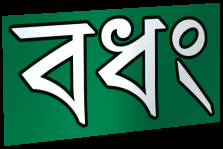
বধং